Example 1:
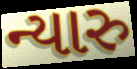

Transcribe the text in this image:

ન્યારુ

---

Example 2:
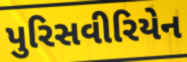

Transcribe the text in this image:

પુરિસવીરિયેન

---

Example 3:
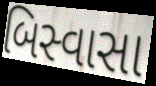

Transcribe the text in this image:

બિસ્વાસા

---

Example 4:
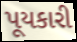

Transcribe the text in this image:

પૂયકારી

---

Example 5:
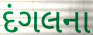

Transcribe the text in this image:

દંગલના